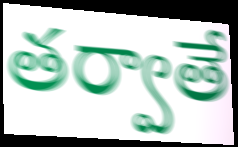
తర్వాతే